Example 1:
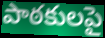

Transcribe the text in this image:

పాఠకులపై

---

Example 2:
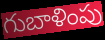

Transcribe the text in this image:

గుబాళింపు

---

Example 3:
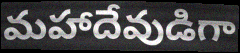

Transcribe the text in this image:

మహాదేవుడిగా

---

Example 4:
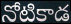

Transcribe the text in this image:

నోటికాడ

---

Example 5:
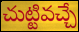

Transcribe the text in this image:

చుట్టివచ్చే